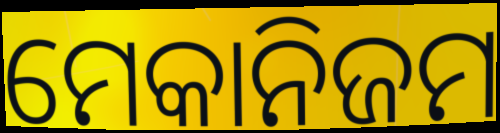
ମେକାନିଜମ